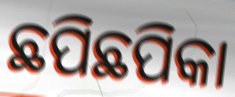
ଛପିଛପିକା